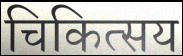
चिकित्सय